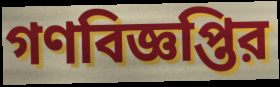
গণবিজ্ঞপ্তির